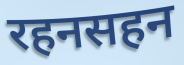
रहनसहन